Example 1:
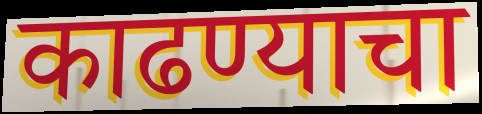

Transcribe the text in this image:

काढण्याचा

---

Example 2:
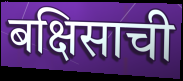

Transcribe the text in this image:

बक्षिसाची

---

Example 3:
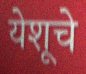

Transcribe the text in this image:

येशूचे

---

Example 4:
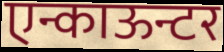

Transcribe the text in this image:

एन्काऊन्टर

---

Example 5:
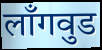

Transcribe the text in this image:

लाँगवुड